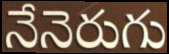
నేనెరుగు